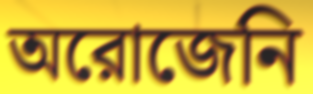
অরোজেনি